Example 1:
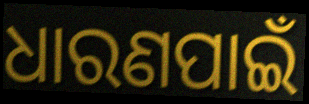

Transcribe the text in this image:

ଧାରଣପାଇଁ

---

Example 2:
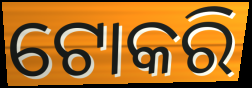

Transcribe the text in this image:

ଟୋକରି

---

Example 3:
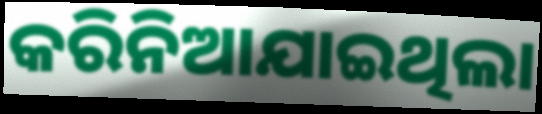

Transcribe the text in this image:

କରିନିଆଯାଇଥିଲା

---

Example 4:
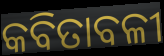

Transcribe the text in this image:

କବିତାବଳୀ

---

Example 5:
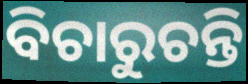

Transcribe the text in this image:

ବିଚାରୁଚନ୍ତି